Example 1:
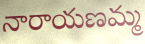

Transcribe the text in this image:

నారాయణమ్మ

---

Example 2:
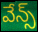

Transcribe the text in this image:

వేన్స్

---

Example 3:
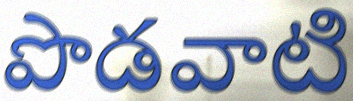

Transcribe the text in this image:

పొడవాటి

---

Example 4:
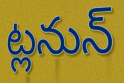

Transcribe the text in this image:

ట్లనున్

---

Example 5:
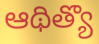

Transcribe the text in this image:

ఆథిత్యొ